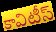
కావిటీస్